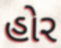
હોર